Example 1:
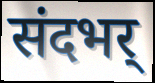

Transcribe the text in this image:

संदभर्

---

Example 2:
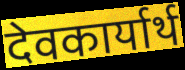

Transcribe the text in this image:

देवकार्यार्थ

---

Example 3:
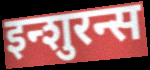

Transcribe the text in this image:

इन्शुरन्स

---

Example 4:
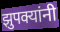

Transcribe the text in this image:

झुपक्यांनी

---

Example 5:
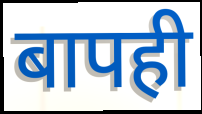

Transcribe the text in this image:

बापही